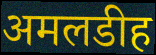
अमलडीह